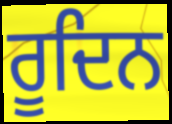
ਰੂਦਿਨ